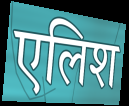
एलिश